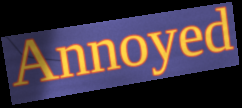
Annoyed